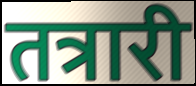
तत्रारी